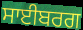
ਸਾਈਬਰਗ